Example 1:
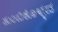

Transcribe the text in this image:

ತುಂಬಿಕೊಳ್ಳದ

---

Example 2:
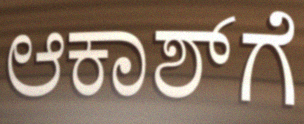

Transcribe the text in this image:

ಆಕಾಶ್‌ಗೆ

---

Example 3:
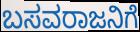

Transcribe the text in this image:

ಬಸವರಾಜನಿಗೆ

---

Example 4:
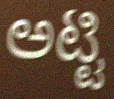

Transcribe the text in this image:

ಅಟ್ಟಿ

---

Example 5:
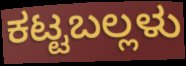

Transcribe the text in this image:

ಕಟ್ಟಬಲ್ಲಳು